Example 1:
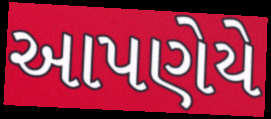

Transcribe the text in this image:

આપણેયે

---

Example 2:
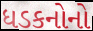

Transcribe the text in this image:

ધડકનોનો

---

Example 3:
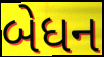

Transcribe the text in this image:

બેધન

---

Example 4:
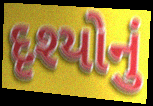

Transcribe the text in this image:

દૃશ્યોનું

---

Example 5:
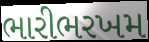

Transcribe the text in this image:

ભારીભરખમ